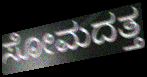
ಸೋಮದತ್ತ